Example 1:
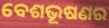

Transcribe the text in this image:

ବେଶଭୂଷଣର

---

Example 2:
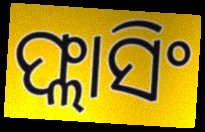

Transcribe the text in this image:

ଫ୍ଲାସିଂ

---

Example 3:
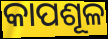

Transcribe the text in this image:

କାପଶୂଳ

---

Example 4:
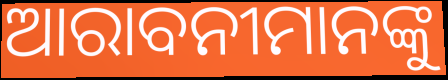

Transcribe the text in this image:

ଆରାବନୀମାନଙ୍କୁ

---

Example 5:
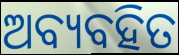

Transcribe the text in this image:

ଅବ୍ୟବହିତ